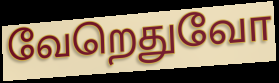
வேறெதுவோ